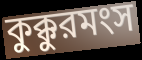
কুক্কুরমংস